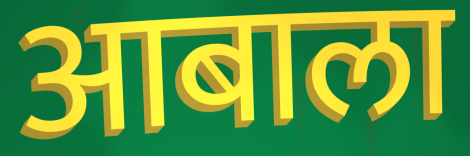
आबाला